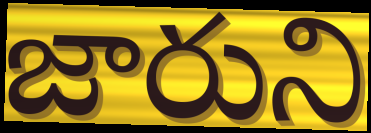
జారుని